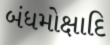
બંધમોક્ષાદિ